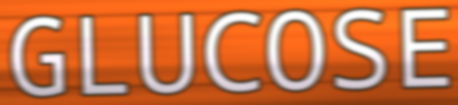
GLUCOSE